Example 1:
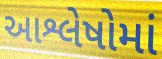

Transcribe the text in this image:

આશ્લેષોમાં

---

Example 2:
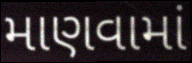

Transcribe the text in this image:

માણવામાં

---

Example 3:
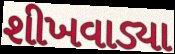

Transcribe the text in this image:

શીખવાડ્યા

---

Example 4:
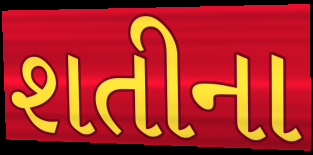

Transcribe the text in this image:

શતીના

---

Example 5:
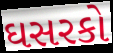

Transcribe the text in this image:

ઘસરકો